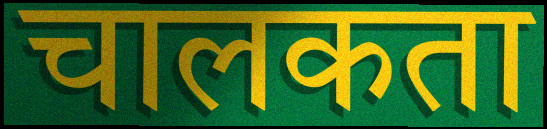
चालकता